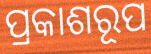
ପ୍ରକାଶରୂପ